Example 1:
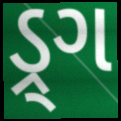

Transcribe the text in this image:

ડ્ર્ગ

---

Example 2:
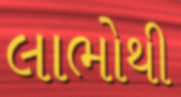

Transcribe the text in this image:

લાભોથી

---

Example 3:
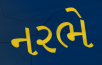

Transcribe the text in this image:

નરભે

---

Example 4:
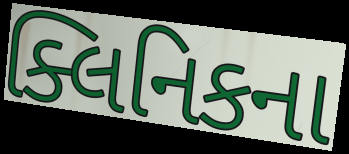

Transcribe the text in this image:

ક્લિનિકના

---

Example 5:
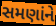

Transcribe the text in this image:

સમણાંને